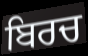
ਬਿਰਚ